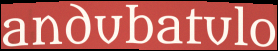
andubatulo